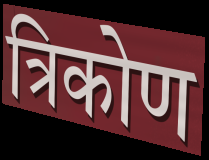
त्रिकोण